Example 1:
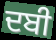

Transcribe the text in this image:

ਦਬੀ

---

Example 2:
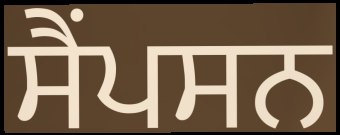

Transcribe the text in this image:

ਸੈਂਪਸਨ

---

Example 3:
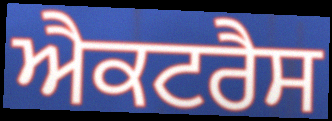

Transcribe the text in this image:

ਐਕਟਰੈਸ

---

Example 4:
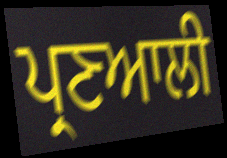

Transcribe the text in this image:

ਪ੍ਰਣਆਲੀ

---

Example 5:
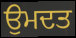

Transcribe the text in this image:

ਉਮਦਤ